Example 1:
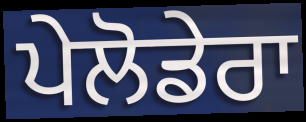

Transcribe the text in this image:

ਪੇਲੋਡੇਰਾ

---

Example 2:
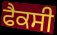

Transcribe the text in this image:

ਫੈਕਸੀ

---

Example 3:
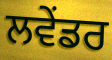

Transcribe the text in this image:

ਲਵੇਂਡਰ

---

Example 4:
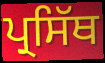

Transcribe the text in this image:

ਪ੍ਰਸਿੱਥ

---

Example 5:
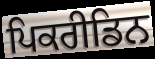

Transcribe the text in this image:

ਪਿਕਰੀਡਿਨ